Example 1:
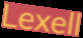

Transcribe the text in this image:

Lexell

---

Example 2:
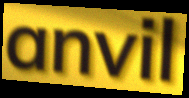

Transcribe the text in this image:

anvil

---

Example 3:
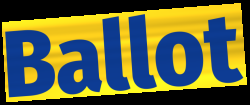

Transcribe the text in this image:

Ballot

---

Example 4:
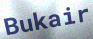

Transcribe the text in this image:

Bukair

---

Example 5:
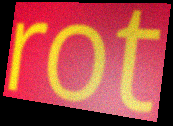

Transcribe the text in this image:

rot